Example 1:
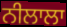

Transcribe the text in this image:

ਨੀਲਾਲਾ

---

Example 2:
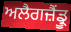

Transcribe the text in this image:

ਅਲੈਗਜ਼ੈਂਡ੍ਰੂ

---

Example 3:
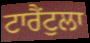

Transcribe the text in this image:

ਟਾਰੈਂਟੁਲਾ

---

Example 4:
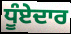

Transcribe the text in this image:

ਧੂੰਏਦਾਰ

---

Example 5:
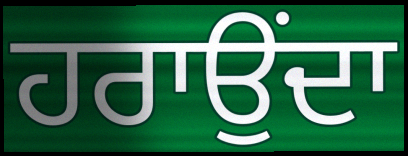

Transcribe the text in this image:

ਹਰਾਉਂਦਾ